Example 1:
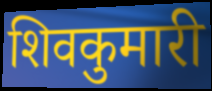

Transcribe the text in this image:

शिवकुमारी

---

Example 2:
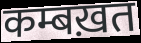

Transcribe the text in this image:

कम्बख़त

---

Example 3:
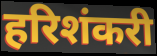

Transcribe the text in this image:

हरिशंकरी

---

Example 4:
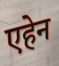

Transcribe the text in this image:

एहेन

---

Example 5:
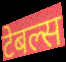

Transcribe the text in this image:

टेबल्स